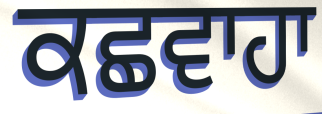
ਕਛਵਾਹਾ